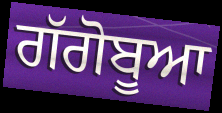
ਗੱਗੋਬੂਆ